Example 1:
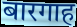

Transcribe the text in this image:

बारगाह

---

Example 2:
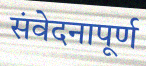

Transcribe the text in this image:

संवेदनापूर्ण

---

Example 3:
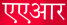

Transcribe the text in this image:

एएआर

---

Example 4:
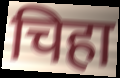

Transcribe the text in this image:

चिहा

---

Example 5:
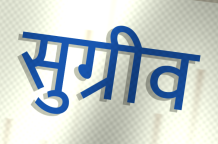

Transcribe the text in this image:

सुग्रीव